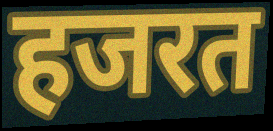
हजरत